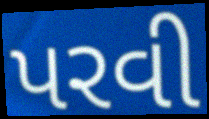
પરવી